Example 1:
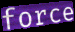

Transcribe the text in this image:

force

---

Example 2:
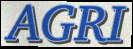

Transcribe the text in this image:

AGRI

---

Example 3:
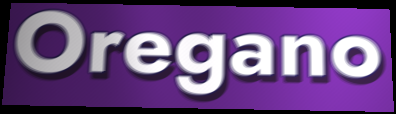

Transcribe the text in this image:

Oregano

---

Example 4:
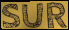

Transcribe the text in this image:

SUR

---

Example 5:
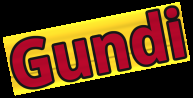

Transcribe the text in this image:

Gundi